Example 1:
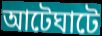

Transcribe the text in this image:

আটেঘাটে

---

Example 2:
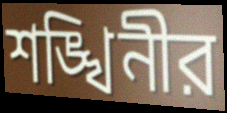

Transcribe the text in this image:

শঙ্খিনীর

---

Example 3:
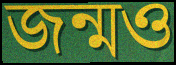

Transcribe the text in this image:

জন্মও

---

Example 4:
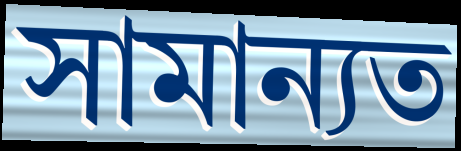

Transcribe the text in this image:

সামান্যত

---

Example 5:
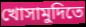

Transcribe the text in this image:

খোসামুদিতে